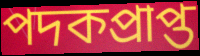
পদকপ্রাপ্ত